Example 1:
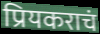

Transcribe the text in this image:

प्रियकराचं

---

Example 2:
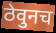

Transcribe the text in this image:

ठेवुनच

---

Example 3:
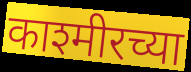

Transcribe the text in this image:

काश्मीरच्या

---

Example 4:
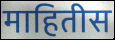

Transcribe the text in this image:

माहितीस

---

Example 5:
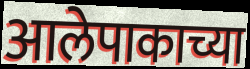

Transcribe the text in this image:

आलेपाकाच्या